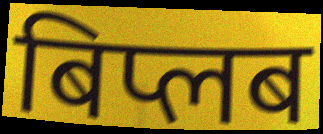
बिप्लब